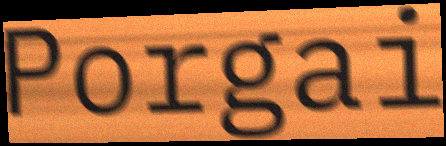
Porgai